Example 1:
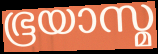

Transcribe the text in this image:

ഭൂയാസ്മ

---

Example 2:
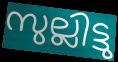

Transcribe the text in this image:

സുല്ലിട്ടു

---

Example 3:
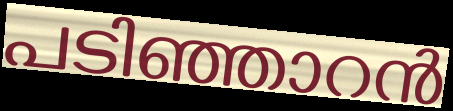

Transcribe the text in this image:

പടിഞ്ഞാറൻ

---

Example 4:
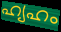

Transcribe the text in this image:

ഹ്യഹം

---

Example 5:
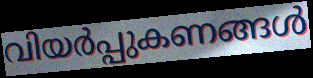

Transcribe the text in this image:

വിയർപ്പുകണങ്ങൾ